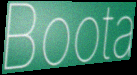
Boota